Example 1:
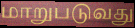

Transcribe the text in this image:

மாறுபடுவது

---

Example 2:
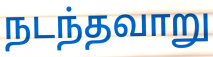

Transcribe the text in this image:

நடந்தவாறு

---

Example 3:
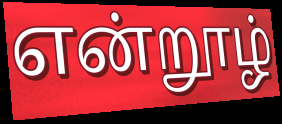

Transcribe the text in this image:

என்றூழ்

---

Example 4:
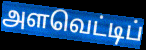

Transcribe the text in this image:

அளவெட்டிப்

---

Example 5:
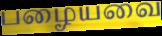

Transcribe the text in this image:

பழையவை